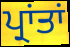
ਪ੍ਰਾਂਤਾਂ